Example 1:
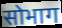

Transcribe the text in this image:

सोभाग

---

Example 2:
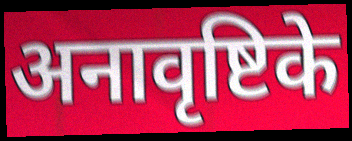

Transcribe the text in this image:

अनावृष्टिके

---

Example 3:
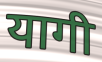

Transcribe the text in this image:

यागी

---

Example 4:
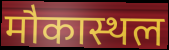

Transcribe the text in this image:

मौकास्थल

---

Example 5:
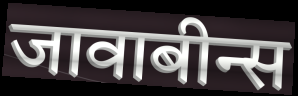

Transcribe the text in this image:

जावाबीन्स